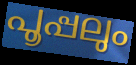
പൂപ്പലും